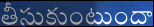
తీసుకుంటుందా